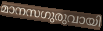
മാനസഗുരുവായി